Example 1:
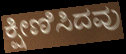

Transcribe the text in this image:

ಕ್ಷೀಣಿಸಿದವು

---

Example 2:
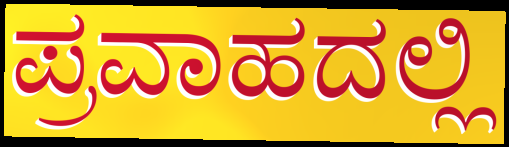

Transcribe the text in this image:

ಪ್ರವಾಹದಲ್ಲಿ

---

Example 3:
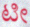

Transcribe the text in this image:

ಟೀ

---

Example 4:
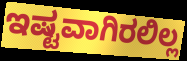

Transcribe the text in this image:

ಇಷ್ಟವಾಗಿರಲಿಲ್ಲ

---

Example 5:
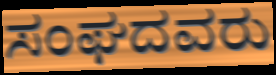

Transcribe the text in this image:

ಸಂಘದವರು